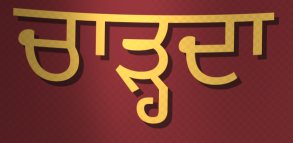
ਚਾੜ੍ਹਦਾ